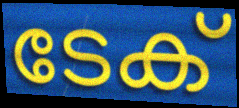
ടേക്